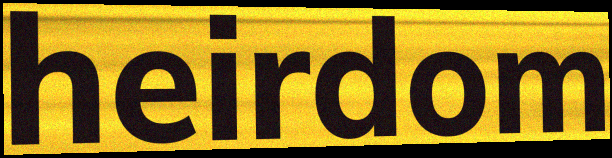
heirdom